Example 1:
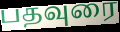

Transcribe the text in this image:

பதவுரை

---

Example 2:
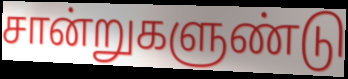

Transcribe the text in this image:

சான்றுகளுண்டு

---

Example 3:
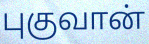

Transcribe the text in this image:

புகுவான்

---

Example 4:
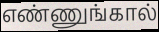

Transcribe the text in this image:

எண்ணுங்கால்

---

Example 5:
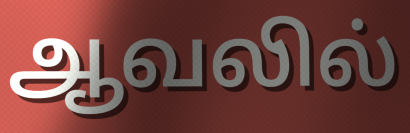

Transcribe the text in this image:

ஆவலில்